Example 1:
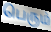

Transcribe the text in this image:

பெரும்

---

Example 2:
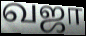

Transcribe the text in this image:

வஜா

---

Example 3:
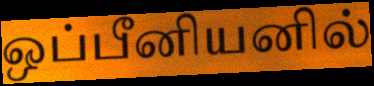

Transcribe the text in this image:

ஒப்பீனியனில்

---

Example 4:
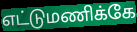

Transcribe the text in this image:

எட்டுமணிக்கே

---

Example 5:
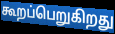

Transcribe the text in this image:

கூறப்பெறுகிறது